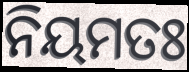
ନିୟମତଃ